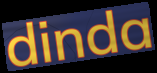
dinda